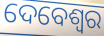
ଦେବେଶ୍ୱର